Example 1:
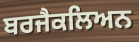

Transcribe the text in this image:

ਬਰਜੈਕਲਿਅਨ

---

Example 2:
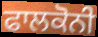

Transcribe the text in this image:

ਫਾਲਕੋਨੀ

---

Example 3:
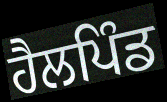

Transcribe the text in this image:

ਹੈਲਪਿੰਡ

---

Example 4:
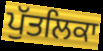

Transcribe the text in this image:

ਪੁੱਤਲਿਕਾ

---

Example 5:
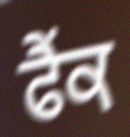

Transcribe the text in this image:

ਫੈਂਕ